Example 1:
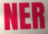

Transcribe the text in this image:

NER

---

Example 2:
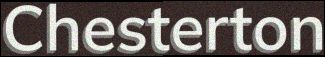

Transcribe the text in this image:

Chesterton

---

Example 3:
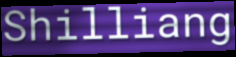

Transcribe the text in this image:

Shilliang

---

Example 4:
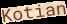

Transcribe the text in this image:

Kotian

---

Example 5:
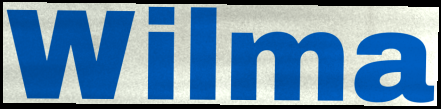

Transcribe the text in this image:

Wilma